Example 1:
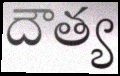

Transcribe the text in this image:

దౌత్య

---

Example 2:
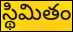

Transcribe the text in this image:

స్థిమితం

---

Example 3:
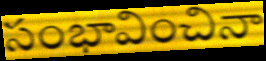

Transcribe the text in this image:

సంభావించినా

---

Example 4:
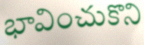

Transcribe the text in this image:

భావించుకొని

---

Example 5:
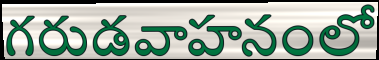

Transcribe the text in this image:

గరుడవాహనంలో